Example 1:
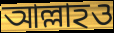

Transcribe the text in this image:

আল্লাহও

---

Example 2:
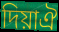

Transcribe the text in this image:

দিয়াঐ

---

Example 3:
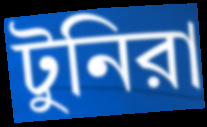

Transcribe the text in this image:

টুনিরা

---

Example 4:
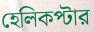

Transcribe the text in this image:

হেলিকপ্টার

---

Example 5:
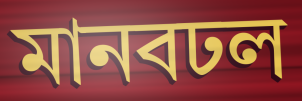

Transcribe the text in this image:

মানবঢল